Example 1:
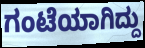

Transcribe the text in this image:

ಗಂಟೆಯಾಗಿದ್ದು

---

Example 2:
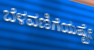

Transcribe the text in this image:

ಬೆಳವಣಿಗೆಯಷ್ಟೇ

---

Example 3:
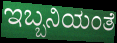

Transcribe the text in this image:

ಇಬ್ಬನಿಯಂತೆ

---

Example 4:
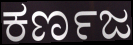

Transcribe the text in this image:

ಕರ್ಣಜ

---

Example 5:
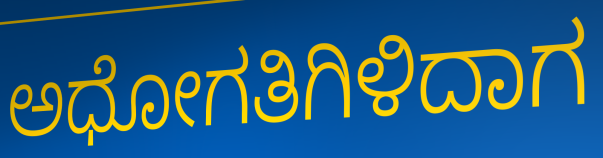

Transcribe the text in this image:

ಅಧೋಗತಿಗಿಳಿದಾಗ